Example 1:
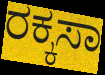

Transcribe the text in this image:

ರಕ್ಕಸಾ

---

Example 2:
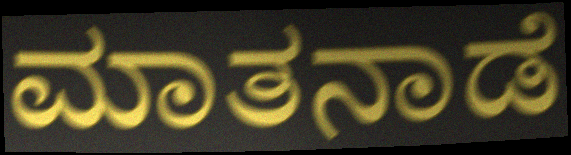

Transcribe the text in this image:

ಮಾತನಾಡೆ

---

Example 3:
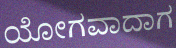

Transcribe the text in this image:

ಯೋಗವಾದಾಗ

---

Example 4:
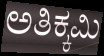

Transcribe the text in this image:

ಅತಿಕ್ಕಮಿ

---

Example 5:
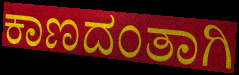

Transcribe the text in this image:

ಕಾಣದಂತಾಗಿ